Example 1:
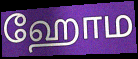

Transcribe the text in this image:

ஹோம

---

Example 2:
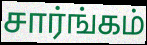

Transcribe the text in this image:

சார்ங்கம்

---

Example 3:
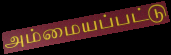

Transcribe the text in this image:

அம்மையப்பட்டு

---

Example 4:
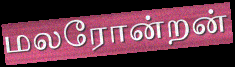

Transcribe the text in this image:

மலரோன்றன்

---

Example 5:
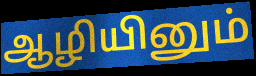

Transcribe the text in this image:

ஆழியினும்